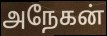
அநேகன்